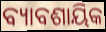
ବ୍ୟାବଶାୟିକ